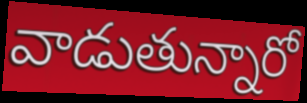
వాడుతున్నారో